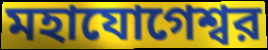
মহাযোগেশ্বর